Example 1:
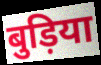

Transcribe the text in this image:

बुड़िया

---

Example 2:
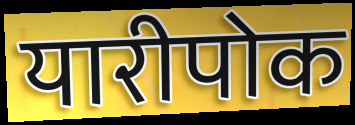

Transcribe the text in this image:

यारीपोक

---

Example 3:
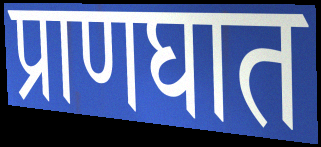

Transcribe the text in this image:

प्राणघात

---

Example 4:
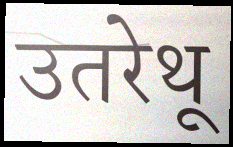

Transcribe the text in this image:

उतरेथू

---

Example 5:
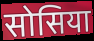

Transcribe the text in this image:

सोसिया